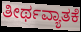
ತೀರ್ಥವ್ಯಾತಕೆ